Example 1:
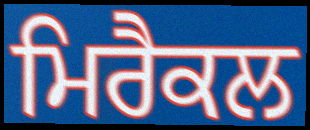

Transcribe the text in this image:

ਮਿਰੈਕਲ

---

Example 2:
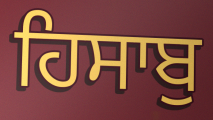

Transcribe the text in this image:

ਹਿਸਾਬੁ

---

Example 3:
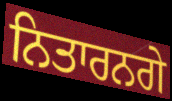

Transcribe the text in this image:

ਨਿਤਾਰਨਗੇ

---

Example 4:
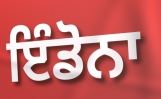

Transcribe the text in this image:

ਇੰਡੋਨਾ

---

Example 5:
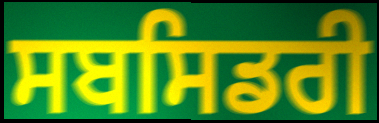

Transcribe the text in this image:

ਸਬਸਿਡਰੀ